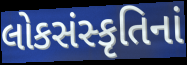
લોકસંસ્કૃતિનાં